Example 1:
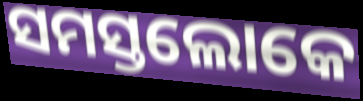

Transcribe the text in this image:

ସମସ୍ତଲୋକେ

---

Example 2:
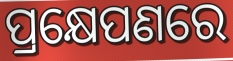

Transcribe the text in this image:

ପ୍ରକ୍ଷେପଣରେ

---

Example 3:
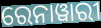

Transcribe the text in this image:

ରେନାୱାରୀ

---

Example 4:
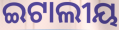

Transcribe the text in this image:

ଇଟାଲୀୟ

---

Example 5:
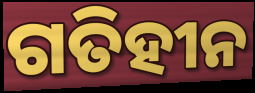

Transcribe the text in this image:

ଗତିହୀନ